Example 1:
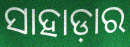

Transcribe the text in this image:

ସାହାଡ଼ାର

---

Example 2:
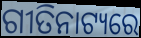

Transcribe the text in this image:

ଗୀତିନାଟ୍ୟରେ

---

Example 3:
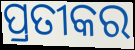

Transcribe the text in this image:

ପ୍ରତୀକର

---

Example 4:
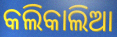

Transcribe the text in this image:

କଲିକାଲିଆ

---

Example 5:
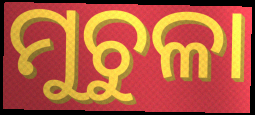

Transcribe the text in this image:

ମୁଚୁଳା